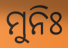
ମୁନିଃ